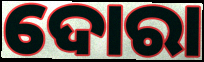
ଦୋରା